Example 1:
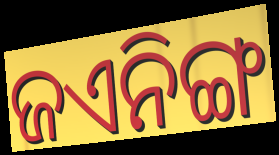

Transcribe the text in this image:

ଜଏନିଙ୍ଗ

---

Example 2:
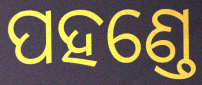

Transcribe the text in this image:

ପହଣ୍ଡେ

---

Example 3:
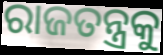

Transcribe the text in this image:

ରାଜତନ୍ତ୍ରକୁ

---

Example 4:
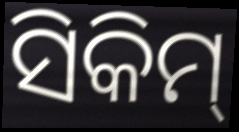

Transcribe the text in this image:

ସିକିମ୍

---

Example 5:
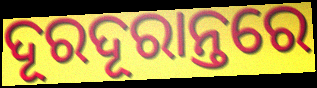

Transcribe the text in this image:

ଦୂରଦୂରାନ୍ତରେ